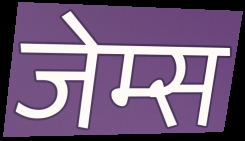
जेम्स